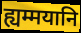
ह्यम्मयानि